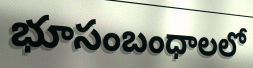
భూసంబంధాలలో